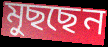
মুছছেন